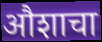
औशाचा